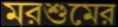
মরশুমের